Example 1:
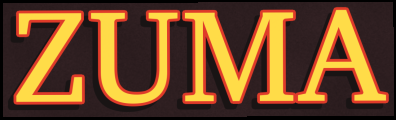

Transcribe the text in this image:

ZUMA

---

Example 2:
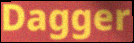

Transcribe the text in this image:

Dagger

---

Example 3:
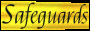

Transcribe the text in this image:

Safeguards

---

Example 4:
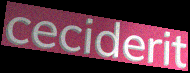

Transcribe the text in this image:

ceciderit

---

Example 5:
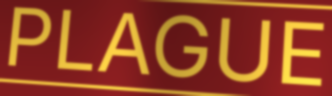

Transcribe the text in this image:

PLAGUE